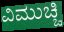
ವಿಮುಚ್ಚಿ